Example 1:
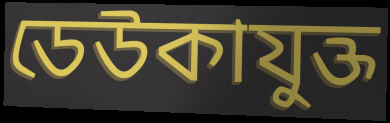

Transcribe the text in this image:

ডেউকাযুক্ত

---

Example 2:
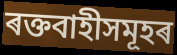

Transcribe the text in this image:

ৰক্তবাহীসমূহৰ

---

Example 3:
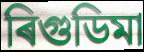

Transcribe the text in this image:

ৰিগুডিমা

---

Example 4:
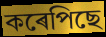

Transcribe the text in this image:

কৰেপিছে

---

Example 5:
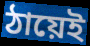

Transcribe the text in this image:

ঠায়েই